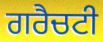
ਗਰੈਚਟੀ